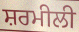
ਸ਼ਰਮੀਲੀ